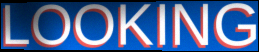
LOOKING